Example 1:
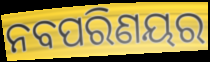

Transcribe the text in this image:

ନବପରିଣୟର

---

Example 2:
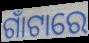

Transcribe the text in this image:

ଗାଁଟାରେ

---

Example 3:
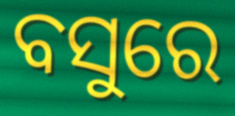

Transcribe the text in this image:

ବସୁରେ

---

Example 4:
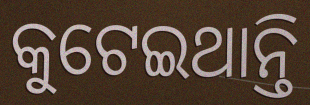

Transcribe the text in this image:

କୁଟେଇଥାନ୍ତି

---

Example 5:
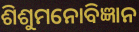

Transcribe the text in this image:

ଶିଶୁମନୋବିଜ୍ଞାନ